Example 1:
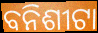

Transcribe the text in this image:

ବନିଶୀଟା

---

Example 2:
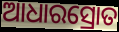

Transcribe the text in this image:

ଆଧାରସ୍ରୋତ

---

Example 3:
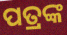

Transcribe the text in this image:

ପତ୍ରଙ୍କ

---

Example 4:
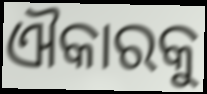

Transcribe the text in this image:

ଐକାରକୁ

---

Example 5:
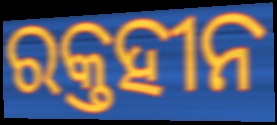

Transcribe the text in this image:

ରକ୍ତହୀନ